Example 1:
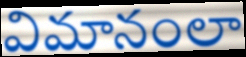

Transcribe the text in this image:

విమానంలా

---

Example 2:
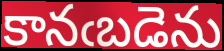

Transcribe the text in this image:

కానఁబడెను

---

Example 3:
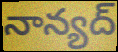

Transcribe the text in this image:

నాన్యద్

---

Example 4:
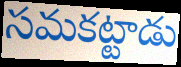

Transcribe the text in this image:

సమకట్టాడు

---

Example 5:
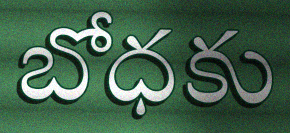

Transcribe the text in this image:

బోధకు